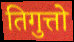
तिगुत्तो